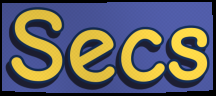
Secs